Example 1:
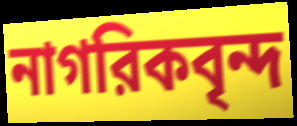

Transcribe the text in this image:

নাগরিকবৃন্দ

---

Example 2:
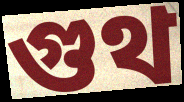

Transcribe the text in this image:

গুথ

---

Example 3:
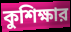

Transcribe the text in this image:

কুশিক্ষার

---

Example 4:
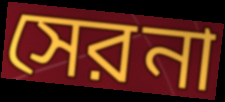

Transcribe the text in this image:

সেরনা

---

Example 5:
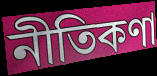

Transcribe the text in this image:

নীতিকণা